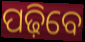
ପଢ଼ିବେ